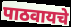
पाठवायचे